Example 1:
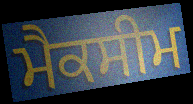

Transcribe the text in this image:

ਮੈਕਸੀਮ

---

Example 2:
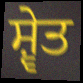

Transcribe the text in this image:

ਸ਼੍ਵੇਤ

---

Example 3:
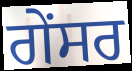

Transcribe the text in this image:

ਗੇਂਸਰ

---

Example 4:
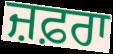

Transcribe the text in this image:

ਜ਼ਫ਼ਰਾ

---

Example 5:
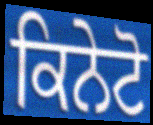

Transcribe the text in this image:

ਕਿਨੇਟੋ